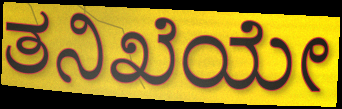
ತನಿಖೆಯೇ